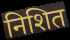
निशित